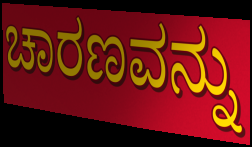
ಚಾರಣವನ್ನು